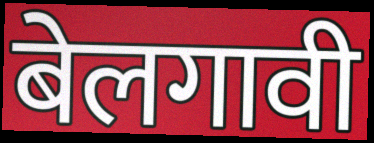
बेलगावी